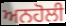
ਅਨਹੋਲੀ